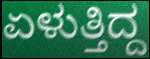
ಏಳುತ್ತಿದ್ದ